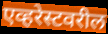
एव्हरेस्टवरील